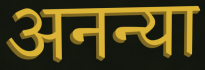
अनन्या